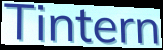
Tintern